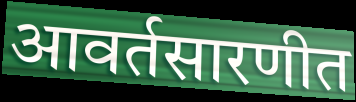
आवर्तसारणीत